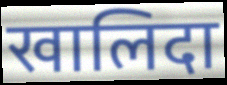
खालिदा